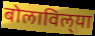
बोलाविल्या